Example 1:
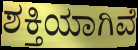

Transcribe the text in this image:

ಶಕ್ತಿಯಾಗಿವೆ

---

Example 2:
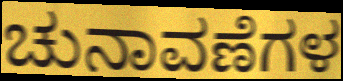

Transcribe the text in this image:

ಚುನಾವಣೆಗಳ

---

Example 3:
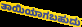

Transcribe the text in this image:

ತಾಯಿಯಾಗಬಹುದು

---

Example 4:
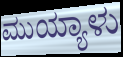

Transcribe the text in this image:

ಮುಯ್ಯಾಳು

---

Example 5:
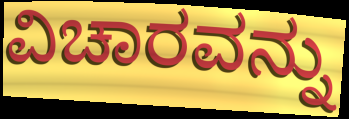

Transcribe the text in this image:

ವಿಚಾರವನ್ನು